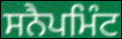
ਸਨੈਪਮਿੰਟ